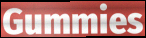
Gummies